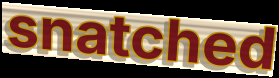
snatched